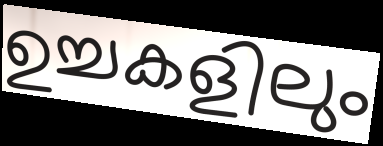
ഉച്ചകളിലും